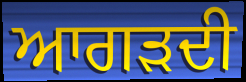
ਆਗੜਦੀ